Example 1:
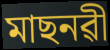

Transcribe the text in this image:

মাছনৱী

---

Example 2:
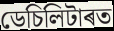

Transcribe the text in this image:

ডেচিলিটাৰত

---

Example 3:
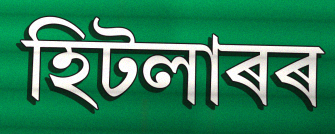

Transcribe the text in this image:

হিটলাৰৰ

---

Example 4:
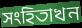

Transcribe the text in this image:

সংহিতাখন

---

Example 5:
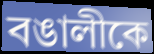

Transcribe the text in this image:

বঙালীকে